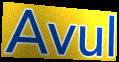
Avul